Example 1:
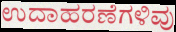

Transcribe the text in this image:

ಉದಾಹರಣೆಗಳಿವು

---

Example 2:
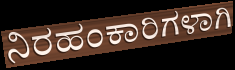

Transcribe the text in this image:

ನಿರಹಂಕಾರಿಗಳಾಗಿ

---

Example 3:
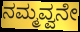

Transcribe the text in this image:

ನಮ್ಮವ್ವನೇ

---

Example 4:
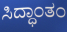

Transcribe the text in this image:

ಸಿದ್ಧಾಂತಂ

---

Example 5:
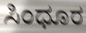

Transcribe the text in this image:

ಸಿಂಧೂರ